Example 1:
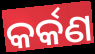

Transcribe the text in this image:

କର୍କଣ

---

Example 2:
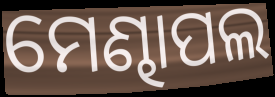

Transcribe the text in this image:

ମେଣ୍ଢାପଲ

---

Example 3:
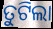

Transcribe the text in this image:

ତୁଟିଲା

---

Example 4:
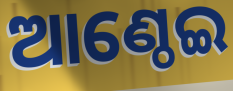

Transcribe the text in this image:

ଆଣ୍ଠେଇ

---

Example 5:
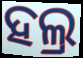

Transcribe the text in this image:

ହଲ୍ର